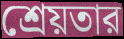
শ্রেয়তার